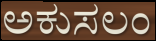
ಅಕುಸಲಂ